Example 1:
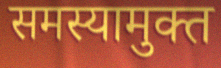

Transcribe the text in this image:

समस्यामुक्त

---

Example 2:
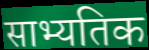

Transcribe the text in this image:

साभ्यतिक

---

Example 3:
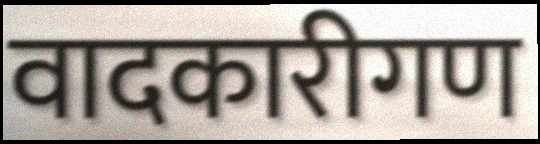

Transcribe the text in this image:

वादकारीगण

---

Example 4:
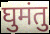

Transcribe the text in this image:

घुमंतु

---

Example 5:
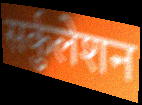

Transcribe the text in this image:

सर्कुलेशन